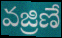
వజ్రిణే